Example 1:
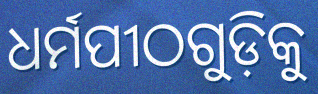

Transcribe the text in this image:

ଧର୍ମପୀଠଗୁଡ଼ିକୁ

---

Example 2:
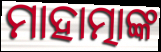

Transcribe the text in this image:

ମାହାତ୍ମାଙ୍କ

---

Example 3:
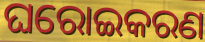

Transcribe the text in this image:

ଘରୋଇକରଣ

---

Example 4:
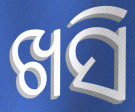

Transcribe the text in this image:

ଖସି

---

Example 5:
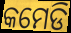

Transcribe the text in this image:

କମେଡି